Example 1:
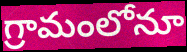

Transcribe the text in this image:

గ్రామంలోనూ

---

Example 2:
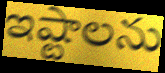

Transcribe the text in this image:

ఇష్టాలను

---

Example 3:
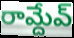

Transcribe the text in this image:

రామ్దేవ్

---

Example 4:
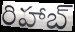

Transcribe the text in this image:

రిహాబ్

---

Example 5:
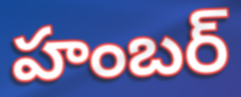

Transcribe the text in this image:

హంబర్